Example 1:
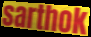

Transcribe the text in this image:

sarthok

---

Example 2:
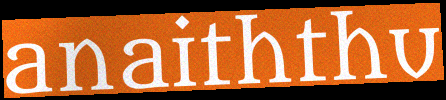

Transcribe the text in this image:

anaiththu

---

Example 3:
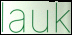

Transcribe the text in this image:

lauk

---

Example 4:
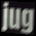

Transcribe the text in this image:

jug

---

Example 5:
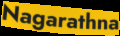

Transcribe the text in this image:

Nagarathna